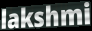
lakshmi